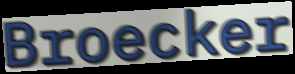
Broecker